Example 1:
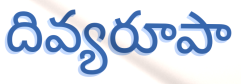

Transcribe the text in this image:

దివ్యరూపా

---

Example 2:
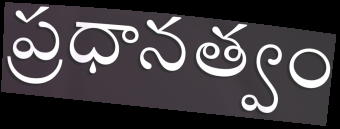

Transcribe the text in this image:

ప్రధానత్వం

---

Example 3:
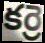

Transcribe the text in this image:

కర్రె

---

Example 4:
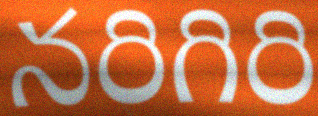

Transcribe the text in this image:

నరిగిరి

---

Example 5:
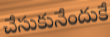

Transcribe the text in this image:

చేసుకునేందుకే